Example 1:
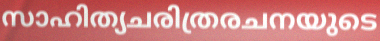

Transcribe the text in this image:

സാഹിത്യചരിത്രരചനയുടെ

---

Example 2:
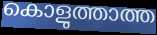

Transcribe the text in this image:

കൊളുത്താത്ത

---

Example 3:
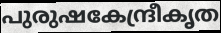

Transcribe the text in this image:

പുരുഷകേന്ദ്രീകൃത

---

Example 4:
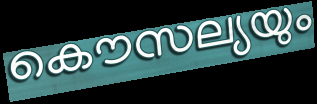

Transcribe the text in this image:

കൌസല്യയും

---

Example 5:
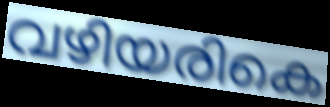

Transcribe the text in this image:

വഴിയരികെ